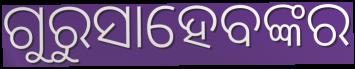
ଗୁରୁସାହେବଙ୍କର